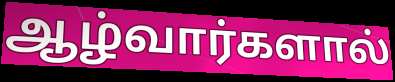
ஆழ்வார்களால்